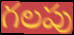
గలపు